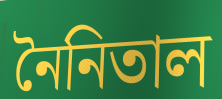
নৈনিতাল